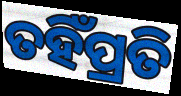
ତହିଁପ୍ରତି